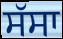
ਸੱਸਾ